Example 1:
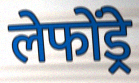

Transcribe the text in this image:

लेफोंड्रे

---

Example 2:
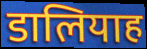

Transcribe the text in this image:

डालियाह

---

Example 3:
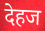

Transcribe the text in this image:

देहज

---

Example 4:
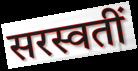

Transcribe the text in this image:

सरस्वतीं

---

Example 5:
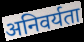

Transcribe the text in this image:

अनिवर्यता